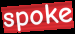
spoke